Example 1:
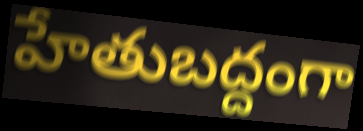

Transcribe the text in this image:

హేతుబద్దంగా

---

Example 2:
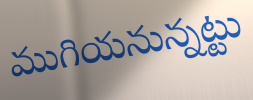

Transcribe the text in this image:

ముగియనున్నట్టు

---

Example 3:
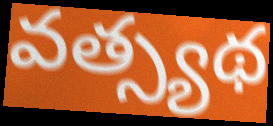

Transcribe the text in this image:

వత్స్యథ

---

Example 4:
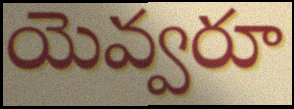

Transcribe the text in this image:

యెవ్వరూ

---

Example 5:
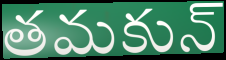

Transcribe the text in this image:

తమకున్